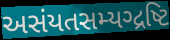
અસંયતસમ્યગ્દ્રષ્ટિ